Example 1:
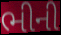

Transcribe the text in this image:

ભીની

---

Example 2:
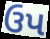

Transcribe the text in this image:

ઉપ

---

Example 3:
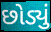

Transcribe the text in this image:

છોડ્યું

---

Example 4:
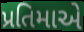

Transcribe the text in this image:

પ્રતિમાએ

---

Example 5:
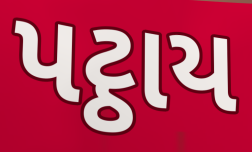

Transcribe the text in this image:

પટ્ઠાય